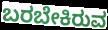
ಬರಬೇಕಿರುವ